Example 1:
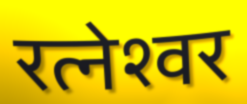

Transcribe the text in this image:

रत्नेश्वर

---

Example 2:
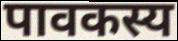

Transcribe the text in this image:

पावकस्य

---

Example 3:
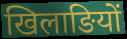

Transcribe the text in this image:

खिलाङियों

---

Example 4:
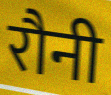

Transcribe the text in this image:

रौनी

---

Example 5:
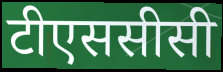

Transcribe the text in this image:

टीएससीसी